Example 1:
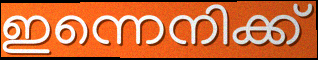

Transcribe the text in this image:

ഇന്നെനിക്ക്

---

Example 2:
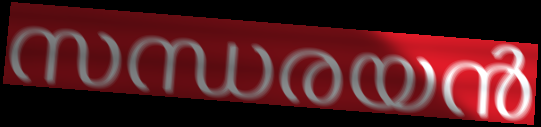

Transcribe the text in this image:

സന്ധരയൻ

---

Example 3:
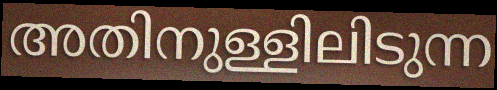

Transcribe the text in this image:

അതിനുള്ളിലിടുന്ന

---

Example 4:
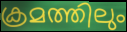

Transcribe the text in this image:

ക്രമത്തിലും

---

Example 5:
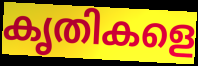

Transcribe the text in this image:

കൃതികളെ